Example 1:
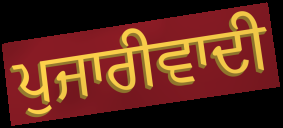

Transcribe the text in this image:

ਪੁਜਾਰੀਵਾਦੀ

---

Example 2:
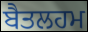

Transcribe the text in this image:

ਬੈਤਲਹਮ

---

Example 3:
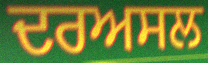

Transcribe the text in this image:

ਦਰਅਸਲ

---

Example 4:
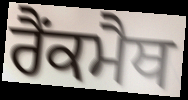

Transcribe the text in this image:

ਰੈਂਕਮੈਥ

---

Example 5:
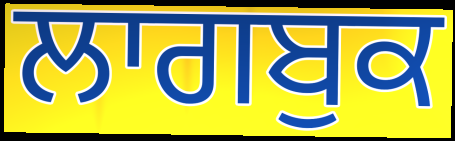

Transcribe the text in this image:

ਲਾਗਬੁਕ